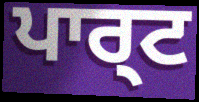
ਪਾਰ੍ਟ